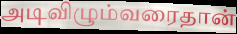
அடிவிழும்வரைதான்